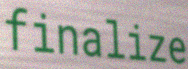
finalize